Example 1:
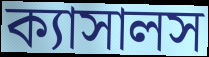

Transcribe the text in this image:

ক্যাসালস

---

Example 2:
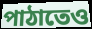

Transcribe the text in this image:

পাঠাতেও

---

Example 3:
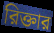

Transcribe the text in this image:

রিক্তার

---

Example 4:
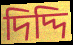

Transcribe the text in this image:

দিদ্দি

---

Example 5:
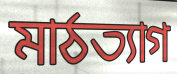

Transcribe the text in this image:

মাঠত্যাগ